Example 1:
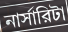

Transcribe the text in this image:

নার্সারিটা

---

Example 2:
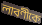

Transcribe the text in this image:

লাবণীকে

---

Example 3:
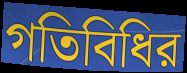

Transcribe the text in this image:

গতিবিধির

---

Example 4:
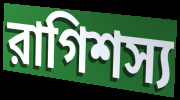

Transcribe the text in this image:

রাগিশস্য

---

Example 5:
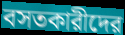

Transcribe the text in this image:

বসতকারীদের